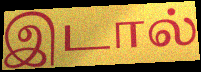
இடால்